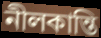
নীলকান্তি